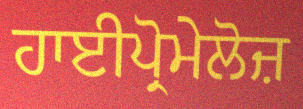
ਹਾਈਪ੍ਰੋਮੇਲੋਜ਼